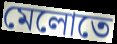
মেলোতে